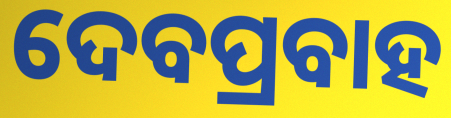
ଦେବପ୍ରବାହ